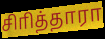
சிரித்தாரா